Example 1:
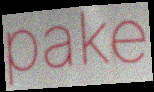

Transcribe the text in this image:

pake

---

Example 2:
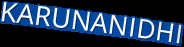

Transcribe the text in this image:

KARUNANIDHI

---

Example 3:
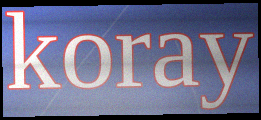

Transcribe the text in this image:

koray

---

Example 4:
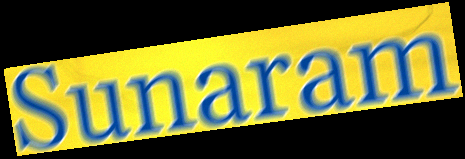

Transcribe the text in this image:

Sunaram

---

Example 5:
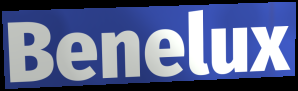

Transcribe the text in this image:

Benelux